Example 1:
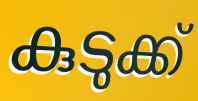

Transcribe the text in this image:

കുടുക്ക്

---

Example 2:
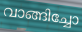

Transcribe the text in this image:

വാങ്ങിച്ചോ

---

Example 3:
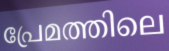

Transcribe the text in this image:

പ്രേമത്തിലെ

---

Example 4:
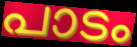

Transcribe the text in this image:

പാടം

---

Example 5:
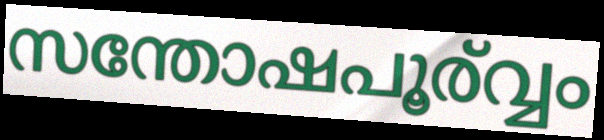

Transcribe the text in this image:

സന്തോഷപൂര്വ്വം